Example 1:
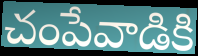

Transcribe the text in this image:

చంపేవాడికి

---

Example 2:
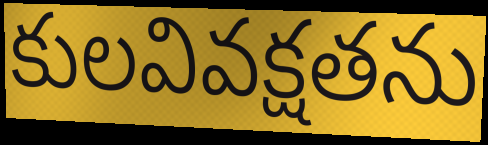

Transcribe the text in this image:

కులవివక్షతను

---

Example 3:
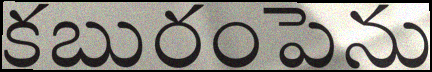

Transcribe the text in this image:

కబురంపెను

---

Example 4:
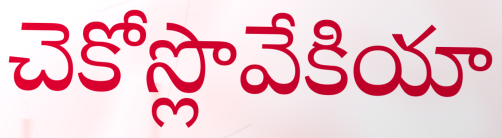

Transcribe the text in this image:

చెకోస్లొవేకియా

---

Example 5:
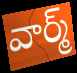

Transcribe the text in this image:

వార్మ్